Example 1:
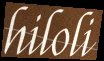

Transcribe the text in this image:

hiloli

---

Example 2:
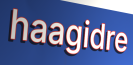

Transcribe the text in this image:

haagidre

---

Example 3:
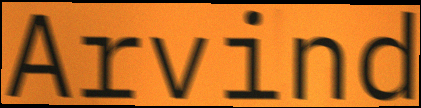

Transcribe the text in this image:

Arvind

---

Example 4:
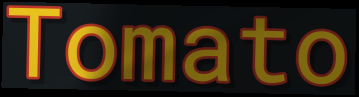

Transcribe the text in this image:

Tomato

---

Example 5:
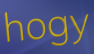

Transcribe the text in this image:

hogy